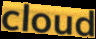
cloud